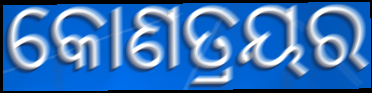
କୋଣତ୍ରୟର